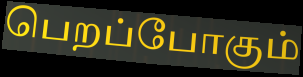
பெறப்போகும்